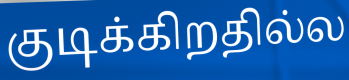
குடிக்கிறதில்ல